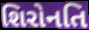
શિરોનતિ